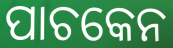
ପାଚକେନ